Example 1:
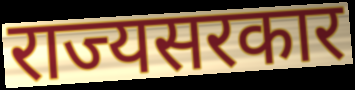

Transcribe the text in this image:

राज्यसरकार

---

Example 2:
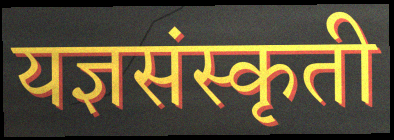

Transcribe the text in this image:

यज्ञसंस्कृती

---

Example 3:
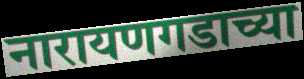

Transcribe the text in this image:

नारायणगडाच्या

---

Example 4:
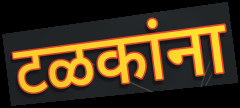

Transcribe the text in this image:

टळकांना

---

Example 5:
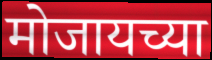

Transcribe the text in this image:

मोजायच्या